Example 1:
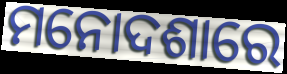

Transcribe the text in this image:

ମନୋଦଶାରେ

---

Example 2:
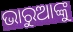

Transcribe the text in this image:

ଭାରୁଆଙ୍କୁ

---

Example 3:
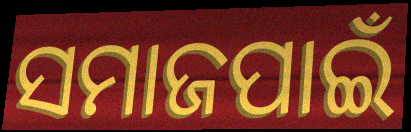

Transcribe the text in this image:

ସମାଜପାଇଁ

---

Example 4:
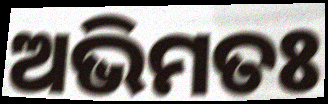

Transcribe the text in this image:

ଅଭିମତଃ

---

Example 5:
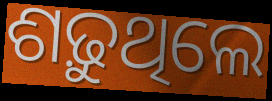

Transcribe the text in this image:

ଶଢ଼ୁଥିଲେ